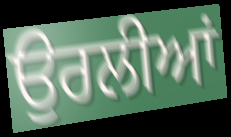
ਉਰਲੀਆਂ